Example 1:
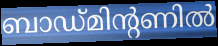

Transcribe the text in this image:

ബാഡ്മിന്റണിൽ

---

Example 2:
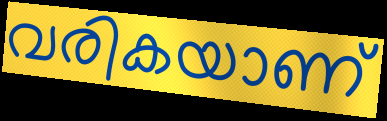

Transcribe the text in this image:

വരികയാണ്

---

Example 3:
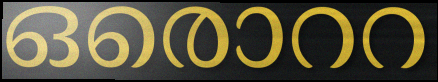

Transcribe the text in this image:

ഒരൊററ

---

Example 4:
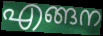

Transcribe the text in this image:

എങ്ങന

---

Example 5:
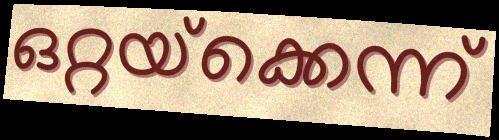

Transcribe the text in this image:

ഒറ്റയ്‌ക്കെന്ന്